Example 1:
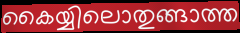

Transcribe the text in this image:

കൈയ്യിലൊതുങ്ങാത്ത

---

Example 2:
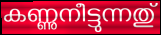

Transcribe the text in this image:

കണ്ണുനീട്ടുന്നതു്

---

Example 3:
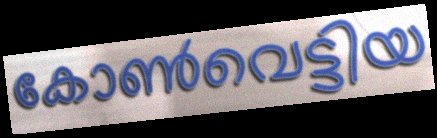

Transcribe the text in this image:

കോൺവെട്ടിയ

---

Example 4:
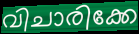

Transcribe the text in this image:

വിചാരിക്കേ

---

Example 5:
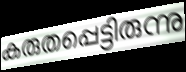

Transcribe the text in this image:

കരുതപ്പെട്ടിരുന്നു